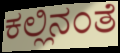
ಕಲ್ಲಿನಂತೆ